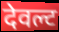
देवल्ट